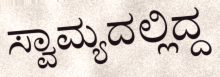
ಸ್ವಾಮ್ಯದಲ್ಲಿದ್ದ